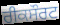
ਰੀਕਸੌਰਟ